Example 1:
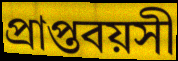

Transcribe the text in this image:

প্রাপ্তবয়সী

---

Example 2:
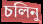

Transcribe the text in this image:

চলিনু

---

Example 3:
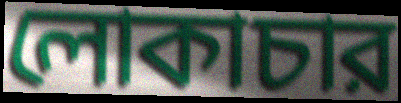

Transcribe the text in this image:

লোকাচার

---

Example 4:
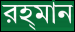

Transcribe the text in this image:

রহ্‌মান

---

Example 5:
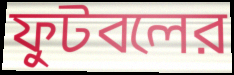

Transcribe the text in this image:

ফুটবলের